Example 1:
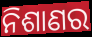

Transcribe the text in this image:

ନିଶାଣର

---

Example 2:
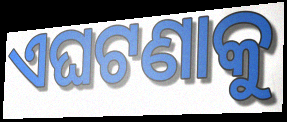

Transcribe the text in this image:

ଏଘଟଣାକୁ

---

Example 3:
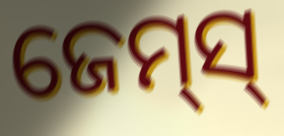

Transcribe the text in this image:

ଜେମ୍‌ସ୍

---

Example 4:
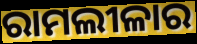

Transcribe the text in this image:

ରାମଲୀଳାର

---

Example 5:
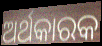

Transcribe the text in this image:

ଅର୍ଥକାରକ